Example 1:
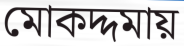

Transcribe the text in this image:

মোকদ্দমায়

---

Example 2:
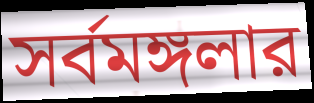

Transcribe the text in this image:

সর্বমঙ্গলার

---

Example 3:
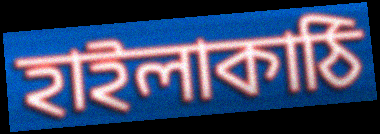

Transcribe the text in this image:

হাইলাকাঠি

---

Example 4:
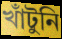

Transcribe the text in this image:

খাঁটুনি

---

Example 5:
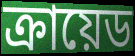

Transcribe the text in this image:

ক্রায়েড